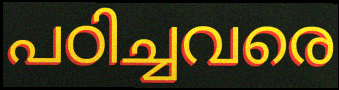
പഠിച്ചവരെ